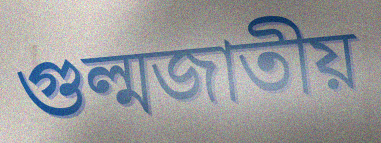
গুল্মজাতীয়